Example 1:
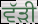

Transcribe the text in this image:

ਵੱੜੀ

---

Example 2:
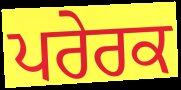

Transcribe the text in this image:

ਪਰੇਰਕ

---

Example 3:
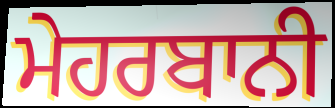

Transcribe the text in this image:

ਮੇਹਰਬਾਨੀ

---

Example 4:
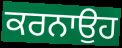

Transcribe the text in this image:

ਕਰਨਾਉਹ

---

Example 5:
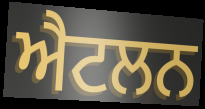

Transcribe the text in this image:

ਐਟਲਨ